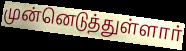
முன்னெடுத்துள்ளார்